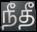
நீதீ